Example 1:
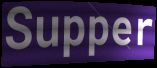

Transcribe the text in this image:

Supper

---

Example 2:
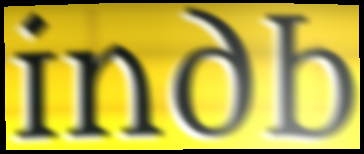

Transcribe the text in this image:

indb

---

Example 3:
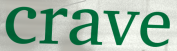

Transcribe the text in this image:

crave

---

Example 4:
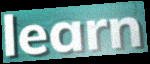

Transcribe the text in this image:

learn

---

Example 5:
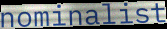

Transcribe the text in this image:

nominalist